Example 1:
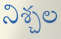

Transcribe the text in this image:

నిశ్చల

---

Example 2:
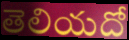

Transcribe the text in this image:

తెలియదో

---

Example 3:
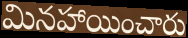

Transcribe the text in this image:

మినహాయించారు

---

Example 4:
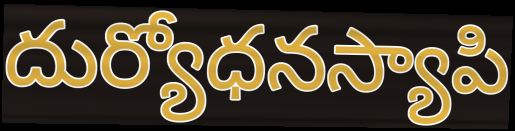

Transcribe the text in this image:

దుర్యోధనస్యాపి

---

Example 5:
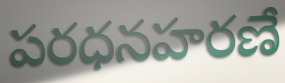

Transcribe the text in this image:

పరధనహరణే